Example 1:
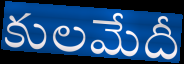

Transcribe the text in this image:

కులమేదీ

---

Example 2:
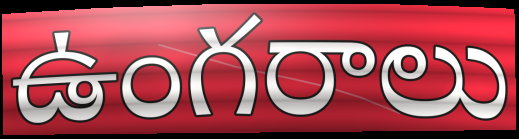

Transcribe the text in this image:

ఉంగరాలు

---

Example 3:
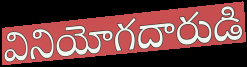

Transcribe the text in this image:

వినియోగదారుడి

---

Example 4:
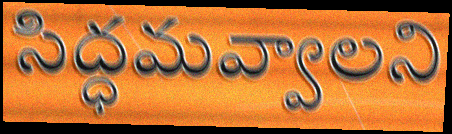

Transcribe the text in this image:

సిద్ధమవ్వాలని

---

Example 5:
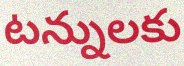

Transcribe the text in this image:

టన్నులకు